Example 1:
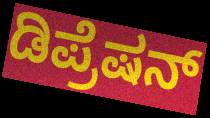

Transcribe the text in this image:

ಡಿಪ್ರೆಷನ್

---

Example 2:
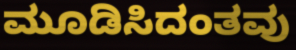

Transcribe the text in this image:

ಮೂಡಿಸಿದಂತವು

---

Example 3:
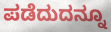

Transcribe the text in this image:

ಪಡೆದುದನ್ನೂ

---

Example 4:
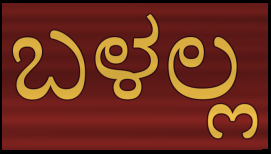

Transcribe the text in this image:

ಬಳಲ್ಲ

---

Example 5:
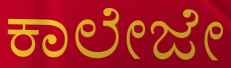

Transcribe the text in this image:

ಕಾಲೇಜೇ